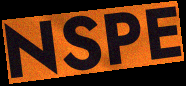
NSPE